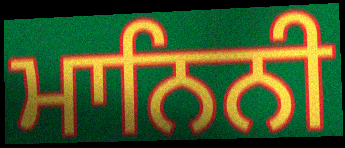
ਮਾਨਿਨੀ